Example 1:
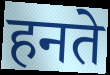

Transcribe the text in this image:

हनते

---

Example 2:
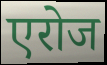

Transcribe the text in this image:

एरोज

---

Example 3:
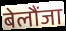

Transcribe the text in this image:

बेलौंजा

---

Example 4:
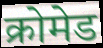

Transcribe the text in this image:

क्रोमेड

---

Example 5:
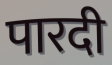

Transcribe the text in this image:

पारदी